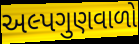
અલ્પગુણવાળો